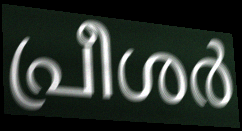
പ്രീശർ